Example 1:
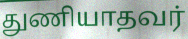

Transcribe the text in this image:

துணியாதவர்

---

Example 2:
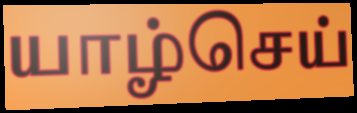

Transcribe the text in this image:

யாழ்செய்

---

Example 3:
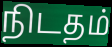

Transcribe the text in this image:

நிடதம்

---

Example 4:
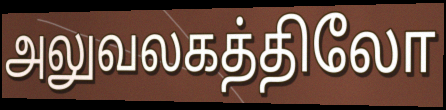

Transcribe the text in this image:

அலுவலகத்திலோ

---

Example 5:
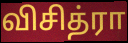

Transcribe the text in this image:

விசித்ரா